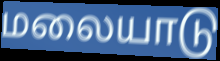
மலையாடு